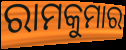
ରାମକୁମାର